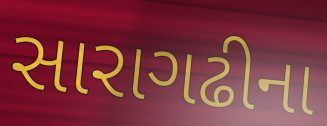
સારાગઢીના